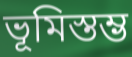
ভূমিস্তম্ভ